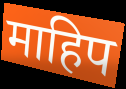
माहिप